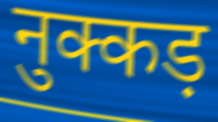
नुक्कड़